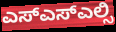
ಎಸ್ಎಸ್ಎಲ್ಸಿ